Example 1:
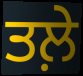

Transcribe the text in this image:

ਤਲ਼ੇ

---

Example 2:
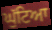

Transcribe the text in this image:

ਘੁੱਟਿਆ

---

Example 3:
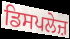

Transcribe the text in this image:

ਡਿਸਪਲੇਜ਼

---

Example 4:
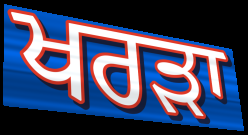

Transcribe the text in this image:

ਖਰੜਾ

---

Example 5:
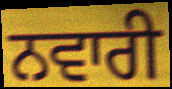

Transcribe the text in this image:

ਨਵਾਰੀ